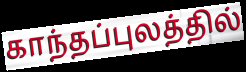
காந்தப்புலத்தில்